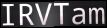
IRVTam